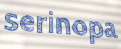
serinopa